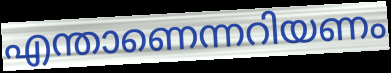
എന്താണെന്നറിയണം